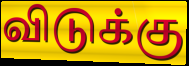
விடுக்கு